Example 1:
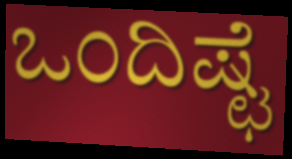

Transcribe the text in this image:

ಒಂದಿಷ್ಟೆ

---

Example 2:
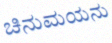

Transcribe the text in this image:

ಚಿನುಮಯನು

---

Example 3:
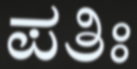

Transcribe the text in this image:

ಪತಿಃ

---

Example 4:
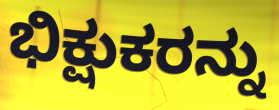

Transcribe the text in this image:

ಭಿಕ್ಷುಕರನ್ನು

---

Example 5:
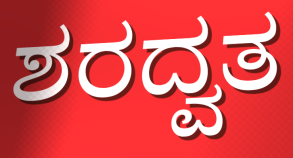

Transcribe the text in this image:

ಶರದ್ವತ